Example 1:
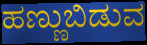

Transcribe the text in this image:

ಹಣ್ಣುಬಿಡುವ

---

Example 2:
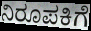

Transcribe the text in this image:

ನಿರೂಪಕಿಗೆ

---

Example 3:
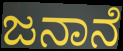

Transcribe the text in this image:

ಜನಾನೆ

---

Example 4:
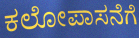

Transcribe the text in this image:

ಕಲೋಪಾಸನೆಗೆ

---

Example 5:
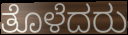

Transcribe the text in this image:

ತೊಳೆದರು